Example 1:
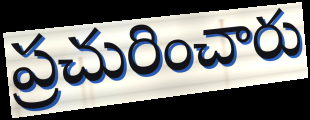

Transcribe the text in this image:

ప్రచురించారు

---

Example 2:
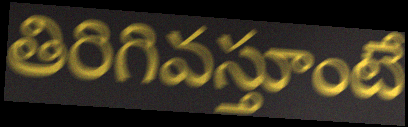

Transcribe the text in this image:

తిరిగివస్తూంటే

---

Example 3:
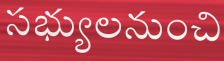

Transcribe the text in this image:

సభ్యులనుంచి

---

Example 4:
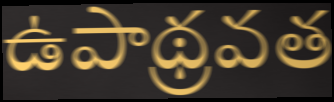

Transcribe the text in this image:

ఉపాథ్రవత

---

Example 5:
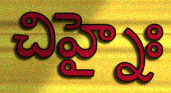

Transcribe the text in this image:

చిహ్నైః